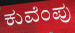
ಕುವೆಂಪು